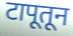
टापूतून